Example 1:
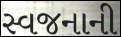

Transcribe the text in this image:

સ્વજનાની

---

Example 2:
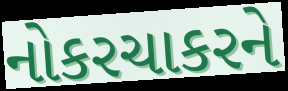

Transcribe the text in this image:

નોકરચાકરને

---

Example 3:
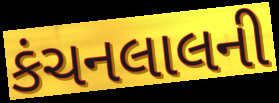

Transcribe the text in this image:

કંચનલાલની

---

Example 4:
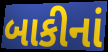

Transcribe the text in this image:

બાકીનાં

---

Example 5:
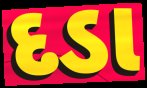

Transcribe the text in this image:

દડા